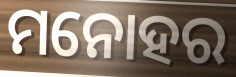
ମନୋହର